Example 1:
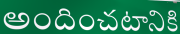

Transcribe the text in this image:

అందించటానికి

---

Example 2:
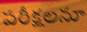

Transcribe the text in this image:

పరీక్షలనూ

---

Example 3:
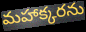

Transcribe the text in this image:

మహాక్కరను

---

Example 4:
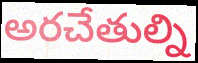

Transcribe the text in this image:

అరచేతుల్ని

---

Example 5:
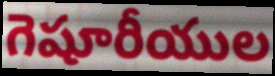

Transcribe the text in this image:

గెషూరీయుల